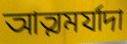
আত্মমর্যাদা